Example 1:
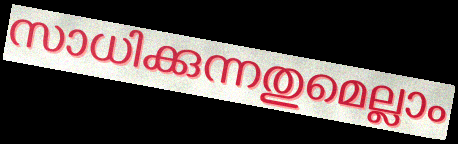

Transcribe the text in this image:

സാധിക്കുന്നതുമെല്ലാം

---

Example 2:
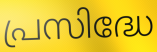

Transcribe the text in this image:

പ്രസിദ്ധേ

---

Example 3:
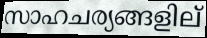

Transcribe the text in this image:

സാഹചര്യങ്ങളില്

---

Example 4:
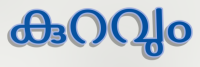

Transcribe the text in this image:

കുറവും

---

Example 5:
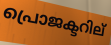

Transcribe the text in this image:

പ്രൊജക്ടറില്